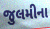
જુલમીના